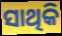
ସାଥିକି